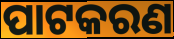
ପାଟକରଣ